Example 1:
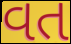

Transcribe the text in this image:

વત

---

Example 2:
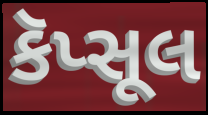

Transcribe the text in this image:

કૅપ્સૂલ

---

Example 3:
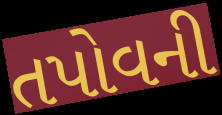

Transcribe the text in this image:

તપોવની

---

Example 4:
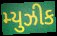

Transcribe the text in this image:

મ્યુઝીક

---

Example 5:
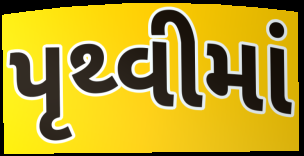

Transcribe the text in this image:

પૃથ્વીમાં